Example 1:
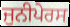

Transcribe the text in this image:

ਜੁਨੀਪੇਰਸ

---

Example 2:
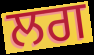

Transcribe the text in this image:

ਲਗ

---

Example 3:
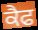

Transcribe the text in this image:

ਕੈਫ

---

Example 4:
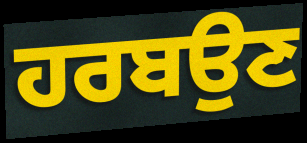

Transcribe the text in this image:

ਹਰਬਉਣ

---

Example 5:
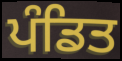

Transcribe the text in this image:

ਪੰਡਿਤ